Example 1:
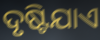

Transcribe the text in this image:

ଦୃଷ୍ଟିଯାଏ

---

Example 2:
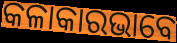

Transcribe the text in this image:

କଳାକାରଭାବେ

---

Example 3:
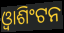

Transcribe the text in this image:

ଓ୍ୱାଶିଂଟନ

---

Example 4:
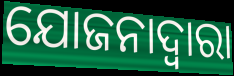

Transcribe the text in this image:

ଯୋଜନାଦ୍ୱାରା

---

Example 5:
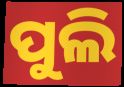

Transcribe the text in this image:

ପୁଲି